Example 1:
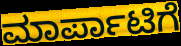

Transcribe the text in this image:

ಮಾರ್ಪಾಟಿಗೆ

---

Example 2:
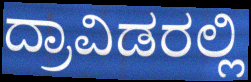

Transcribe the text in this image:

ದ್ರಾವಿಡರಲ್ಲಿ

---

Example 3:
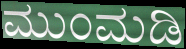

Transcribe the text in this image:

ಮುಂಮಡಿ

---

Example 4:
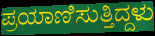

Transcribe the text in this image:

ಪ್ರಯಾಣಿಸುತ್ತಿದ್ದಳು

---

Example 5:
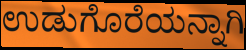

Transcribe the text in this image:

ಉಡುಗೊರೆಯನ್ನಾಗಿ